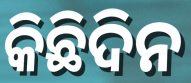
କିଛିଦିନ